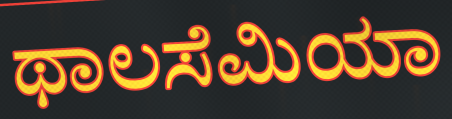
ಥಾಲಸೆಮಿಯಾ